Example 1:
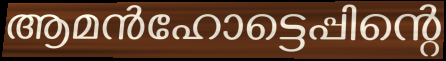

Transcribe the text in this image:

ആമൻഹോട്ടെപ്പിന്റെ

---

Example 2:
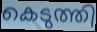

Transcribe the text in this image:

കെടുത്തി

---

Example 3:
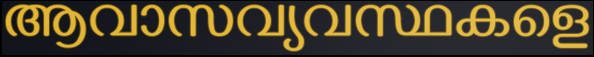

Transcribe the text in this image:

ആവാസവ്യവസ്ഥകളെ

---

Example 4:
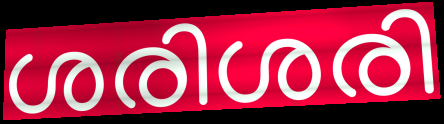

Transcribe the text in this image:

ശരിശരി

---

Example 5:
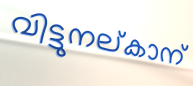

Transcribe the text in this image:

വിട്ടുനല്കാന്